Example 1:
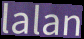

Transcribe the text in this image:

lalan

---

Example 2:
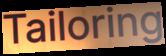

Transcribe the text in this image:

Tailoring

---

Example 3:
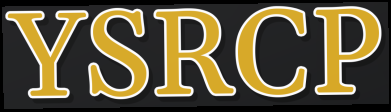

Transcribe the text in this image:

YSRCP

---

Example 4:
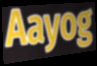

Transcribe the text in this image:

Aayog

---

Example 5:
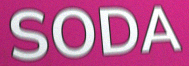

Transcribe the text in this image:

SODA